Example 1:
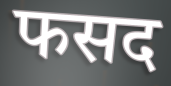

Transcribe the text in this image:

फसद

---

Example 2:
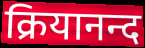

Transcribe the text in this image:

क्रियानन्द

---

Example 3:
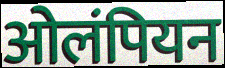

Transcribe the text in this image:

ओलंपियन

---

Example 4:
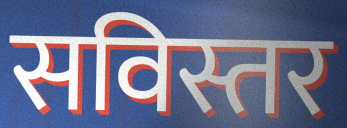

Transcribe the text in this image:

सविस्तर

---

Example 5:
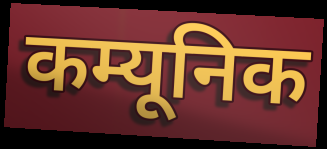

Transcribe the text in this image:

कम्यूनिक